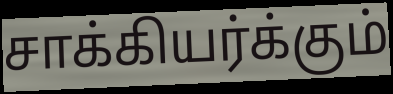
சாக்கியர்க்கும்